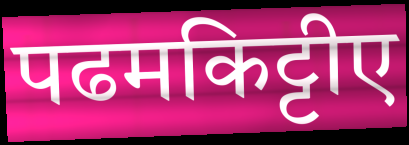
पढमकिट्टीए